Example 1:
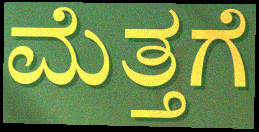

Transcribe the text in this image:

ಮೆತ್ತಗೆ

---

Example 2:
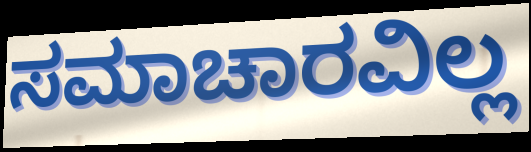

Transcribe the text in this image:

ಸಮಾಚಾರವಿಲ್ಲ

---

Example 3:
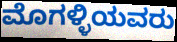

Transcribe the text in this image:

ಮೊಗಳ್ಳಿಯವರು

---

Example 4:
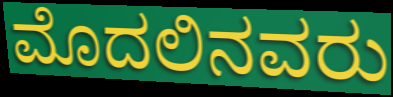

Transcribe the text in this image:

ಮೊದಲಿನವರು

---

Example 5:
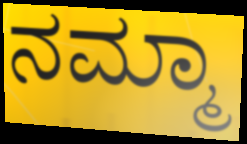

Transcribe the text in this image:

ನಮ್ಮಾ